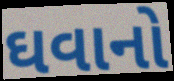
ઘવાનો